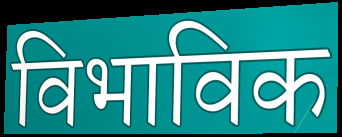
विभाविक